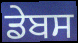
ਡੇਬਸ